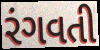
રંગવતી